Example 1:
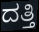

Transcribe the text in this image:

ದತ್ತಿ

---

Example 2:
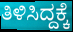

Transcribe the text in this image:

ತಿಳಿಸಿದ್ದಕ್ಕೆ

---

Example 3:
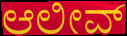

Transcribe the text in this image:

ಆಲೀವ್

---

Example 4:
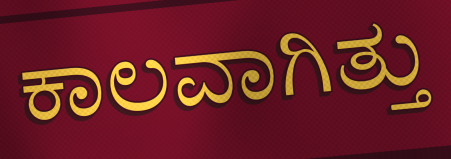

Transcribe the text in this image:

ಕಾಲವಾಗಿತ್ತು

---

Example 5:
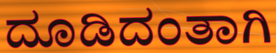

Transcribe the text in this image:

ದೂಡಿದಂತಾಗಿ